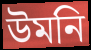
উমনি